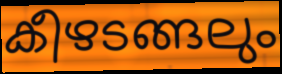
കീഴടങ്ങലും